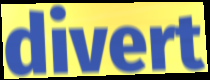
divert